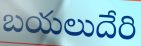
బయలుదేరి